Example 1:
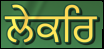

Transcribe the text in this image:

ਲੇਕਰਿ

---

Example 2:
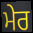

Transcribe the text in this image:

ਮੇਰ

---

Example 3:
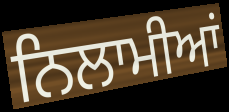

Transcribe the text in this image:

ਨਿਲਾਮੀਆਂ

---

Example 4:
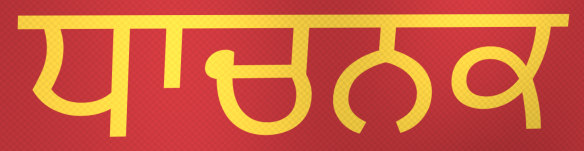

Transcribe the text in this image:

ਧਾਚਨਕ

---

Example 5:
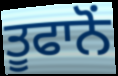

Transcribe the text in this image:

ਤੂਫਾਨੋਂ